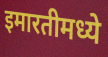
इमारतीमध्ये